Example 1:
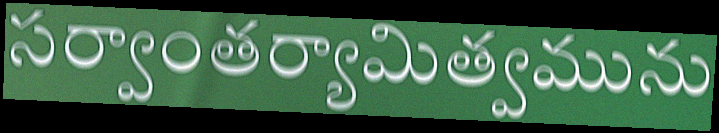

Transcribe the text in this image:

సర్వాంతర్యామిత్వమును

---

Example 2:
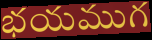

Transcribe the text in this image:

భయముగ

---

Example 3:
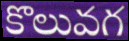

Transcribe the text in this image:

కొలువగ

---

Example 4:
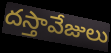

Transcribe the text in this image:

దస్తావేజులు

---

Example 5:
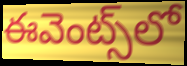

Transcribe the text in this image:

ఈవెంట్స్‌లో